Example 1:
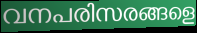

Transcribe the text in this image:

വനപരിസരങ്ങളെ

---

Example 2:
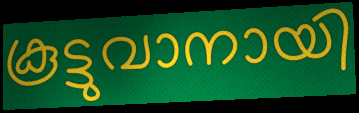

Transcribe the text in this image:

കൂട്ടുവാനായി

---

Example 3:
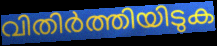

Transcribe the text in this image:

വിതിർത്തിയിടുക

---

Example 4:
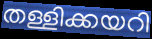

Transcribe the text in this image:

തള്ളിക്കയറി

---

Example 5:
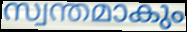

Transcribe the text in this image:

സ്വന്തമാകും